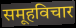
समूहविचार